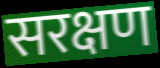
सरक्षण